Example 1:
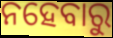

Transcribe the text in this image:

ନହେବାରୁ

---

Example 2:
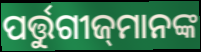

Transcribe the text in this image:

ପର୍ତ୍ତୁଗୀଜ୍‌ମାନଙ୍କ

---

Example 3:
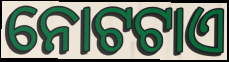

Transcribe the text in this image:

ନୋଟଟାଏ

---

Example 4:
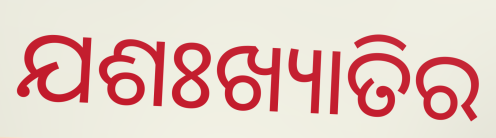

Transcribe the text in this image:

ଯଶଃଖ୍ୟାତିର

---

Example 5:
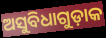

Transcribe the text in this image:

ଅସୁବିଧାଗୁଡ଼ାକ